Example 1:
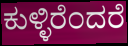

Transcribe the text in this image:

ಕುಳ್ಳಿರೆಂದರೆ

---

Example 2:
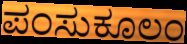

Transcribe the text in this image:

ಪಂಸುಕೂಲಂ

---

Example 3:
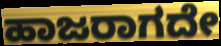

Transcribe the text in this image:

ಹಾಜರಾಗದೇ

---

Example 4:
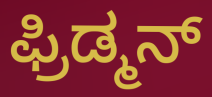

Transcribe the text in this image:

ಫ್ರಿಡ್ಮನ್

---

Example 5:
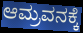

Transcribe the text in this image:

ಆಮ್ರವನಕ್ಕೆ